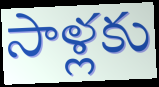
సాళ్లకు